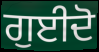
ਗੁਈਦੋ